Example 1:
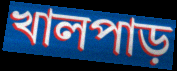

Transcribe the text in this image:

খালপাড়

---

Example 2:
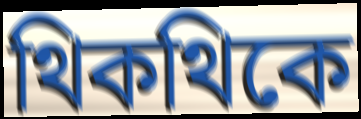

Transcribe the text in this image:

থিকথিকে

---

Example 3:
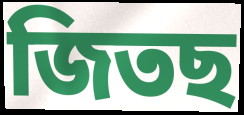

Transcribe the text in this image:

জিতছ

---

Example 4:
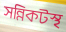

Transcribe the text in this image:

সন্নিকটস্থ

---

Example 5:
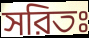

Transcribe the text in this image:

সরিতঃ